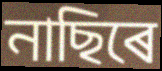
নাছিৰে